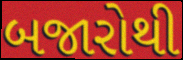
બજારોથી